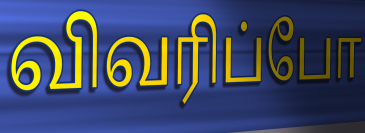
விவரிப்போ